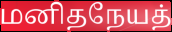
மனிதநேயத்